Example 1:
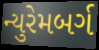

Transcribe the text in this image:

ન્યુરેમબર્ગ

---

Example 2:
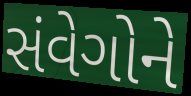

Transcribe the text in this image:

સંવેગોને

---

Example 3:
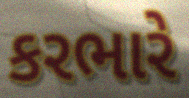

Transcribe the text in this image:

કરભારે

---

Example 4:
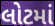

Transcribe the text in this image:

લોટમાં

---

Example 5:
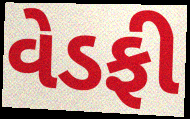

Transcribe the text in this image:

વેડફી